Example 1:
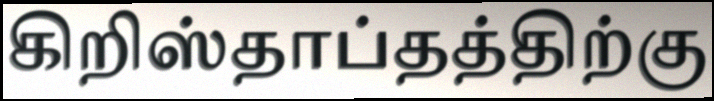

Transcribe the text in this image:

கிறிஸ்தாப்தத்திற்கு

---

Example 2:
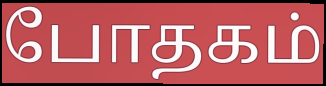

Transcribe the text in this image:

போதகம்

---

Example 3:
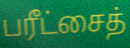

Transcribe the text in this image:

பரீட்சைத்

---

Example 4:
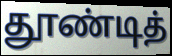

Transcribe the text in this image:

தூண்டித்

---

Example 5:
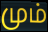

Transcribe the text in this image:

மும்